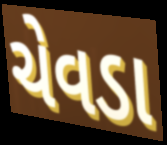
ચેવડા